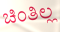
ಚಿಂತಿಲ್ಲ